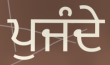
ਪੁਜੰਦੇ